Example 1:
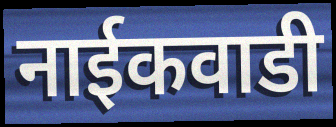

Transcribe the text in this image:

नाईकवाडी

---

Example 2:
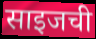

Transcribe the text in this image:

साइजची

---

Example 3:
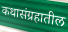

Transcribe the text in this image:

कथासंग्रहातील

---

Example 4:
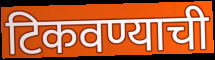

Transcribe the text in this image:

टिकवण्याची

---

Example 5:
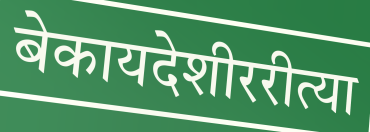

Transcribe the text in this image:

बेकायदेशीररीत्या